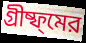
গ্রীষ্ফ্মের